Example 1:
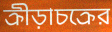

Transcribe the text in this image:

ক্রীড়াচক্রের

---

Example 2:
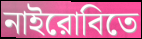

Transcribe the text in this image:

নাইরোবিতে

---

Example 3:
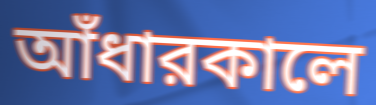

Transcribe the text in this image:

আঁধারকালে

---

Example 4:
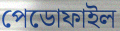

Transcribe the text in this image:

পেডোফাইল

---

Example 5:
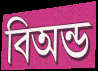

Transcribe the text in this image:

বিঅন্ড